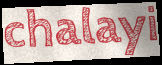
chalayi